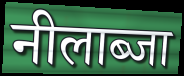
नीलाब्जा